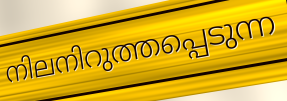
നിലനിറുത്തപ്പെടുന്ന